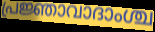
പ്രജ്ഞാവാദാംശ്ച